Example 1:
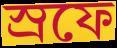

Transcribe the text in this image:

স্রফে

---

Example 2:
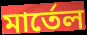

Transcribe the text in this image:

মার্তেল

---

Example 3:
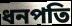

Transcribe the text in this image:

ধনপতি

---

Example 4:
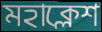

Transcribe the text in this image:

মহাক্লেশ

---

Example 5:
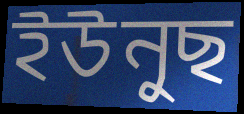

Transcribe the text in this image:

ইউনুছ